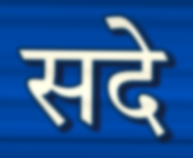
सदे